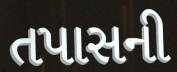
તપાસની